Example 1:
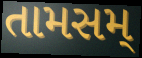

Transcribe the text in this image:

તામસમ્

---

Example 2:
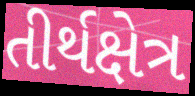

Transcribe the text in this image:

તીર્થક્ષેત્ર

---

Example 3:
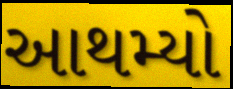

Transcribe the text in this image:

આથમ્યો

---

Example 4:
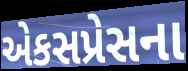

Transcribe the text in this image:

એકસપ્રેસના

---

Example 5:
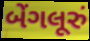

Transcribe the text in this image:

બેંગલૂરું